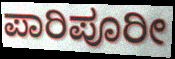
ಪಾರಿಪೂರೀ